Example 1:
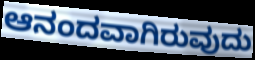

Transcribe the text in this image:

ಆನಂದವಾಗಿರುವುದು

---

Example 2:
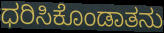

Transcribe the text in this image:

ಧರಿಸಿಕೊಂಡಾತನು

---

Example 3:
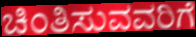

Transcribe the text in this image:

ಚಿಂತಿಸುವವರಿಗೆ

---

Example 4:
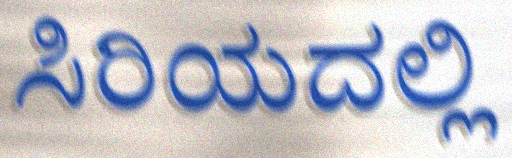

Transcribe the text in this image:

ಸಿರಿಯದಲ್ಲಿ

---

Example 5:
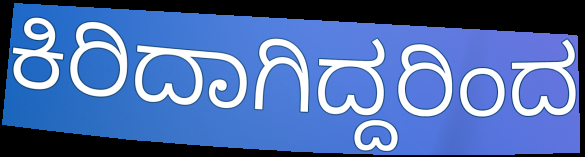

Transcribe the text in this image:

ಕಿರಿದಾಗಿದ್ದರಿಂದ